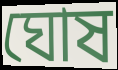
ঘোষ